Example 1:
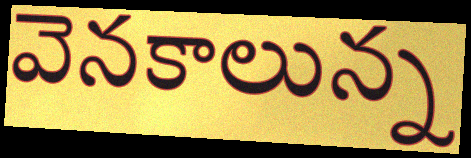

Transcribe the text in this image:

వెనకాలున్న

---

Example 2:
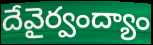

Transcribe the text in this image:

దేవైర్వంద్యాం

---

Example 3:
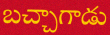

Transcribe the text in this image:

బచ్చాగాడు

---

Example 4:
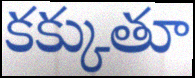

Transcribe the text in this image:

కక్కుతూ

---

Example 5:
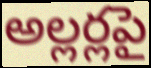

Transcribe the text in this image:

అల్లర్లపై